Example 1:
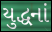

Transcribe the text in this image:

યુદ્ધનાં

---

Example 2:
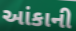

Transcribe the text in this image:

આંકાની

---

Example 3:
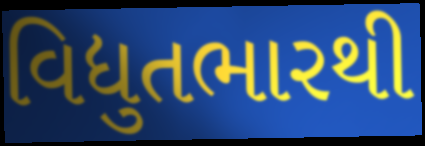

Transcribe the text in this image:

વિદ્યુતભારથી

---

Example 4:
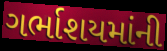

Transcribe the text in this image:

ગર્ભાશયમાંની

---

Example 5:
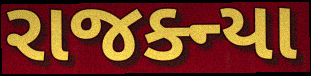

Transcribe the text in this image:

રાજક્ન્યા